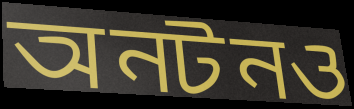
অনটনও